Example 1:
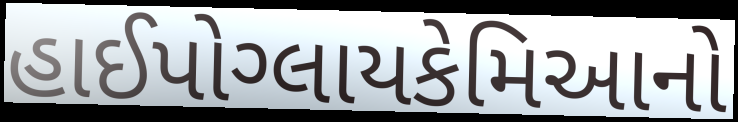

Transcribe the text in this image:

હાઈપોગ્લાયકેમિઆનો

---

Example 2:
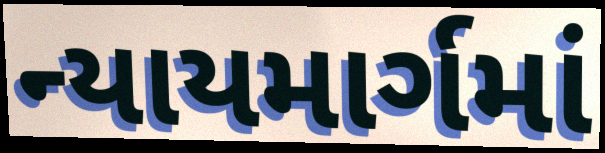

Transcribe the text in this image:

ન્યાયમાર્ગમાં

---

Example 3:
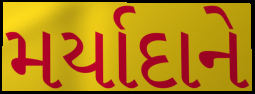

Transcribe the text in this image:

મર્યાદાને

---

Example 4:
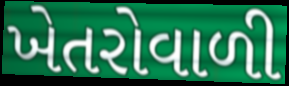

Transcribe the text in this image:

ખેતરોવાળી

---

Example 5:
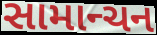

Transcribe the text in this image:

સામાન્ચન